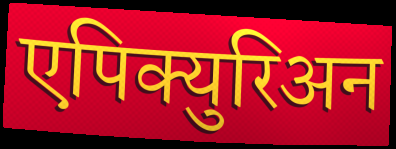
एपिक्युरिअन